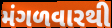
મંગળવારથી